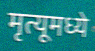
मृत्यूमध्ये